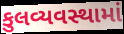
કુલવ્યવસ્થામાં